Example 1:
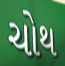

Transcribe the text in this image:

ચોથ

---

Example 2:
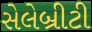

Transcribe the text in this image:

સેલેબ્રીટી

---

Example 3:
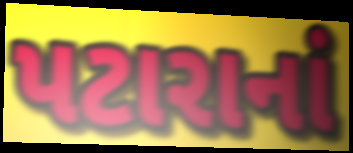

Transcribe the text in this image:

પટારાનાં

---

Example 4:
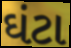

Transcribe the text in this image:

ઘંટા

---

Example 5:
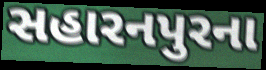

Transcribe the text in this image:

સહારનપુરના